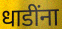
धाडींना